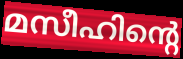
മസീഹിന്റെ